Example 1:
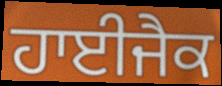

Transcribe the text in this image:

ਹਾਈਜੈਕ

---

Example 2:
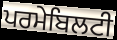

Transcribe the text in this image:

ਪਰਮੇਬਿਲਟੀ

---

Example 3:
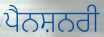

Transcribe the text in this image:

ਪੈਨਸ਼ਨਰੀ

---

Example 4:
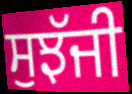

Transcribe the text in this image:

ਸੁਝੱਜੀ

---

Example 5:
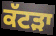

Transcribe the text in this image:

ਕੱਟੜਾ